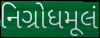
નિગ્રોધમૂલં